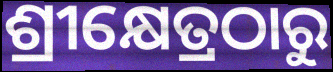
ଶ୍ରୀକ୍ଷେତ୍ରଠାରୁ